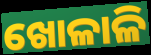
ଖୋଳାଳି